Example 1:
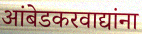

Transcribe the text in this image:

आंबेडकरवाद्यांना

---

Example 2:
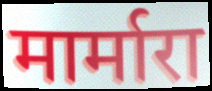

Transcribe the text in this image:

मार्मारा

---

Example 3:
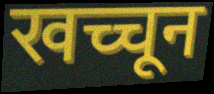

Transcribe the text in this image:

खच्चून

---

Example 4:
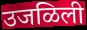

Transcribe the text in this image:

उजळिली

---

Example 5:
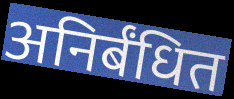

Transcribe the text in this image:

अनिर्बंधित